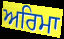
ਅਰਿਮਾ